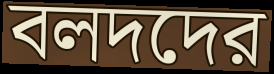
বলদদের